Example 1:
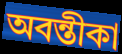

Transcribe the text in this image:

অবন্তীকা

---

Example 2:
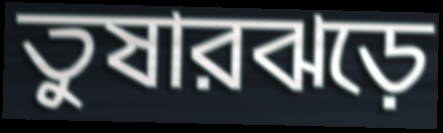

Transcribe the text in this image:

তুষারঝড়ে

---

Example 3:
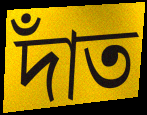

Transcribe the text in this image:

দাঁত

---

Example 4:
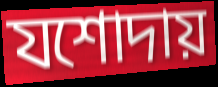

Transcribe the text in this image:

যশোদায়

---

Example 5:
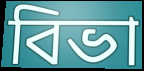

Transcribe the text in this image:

বিভা